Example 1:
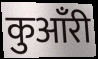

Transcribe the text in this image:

कुआँरी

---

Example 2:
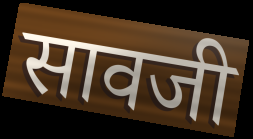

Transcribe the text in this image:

सावजी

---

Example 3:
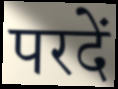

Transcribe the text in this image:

परदें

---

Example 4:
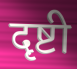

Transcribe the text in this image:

दृष्टी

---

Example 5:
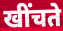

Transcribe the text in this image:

खींचते